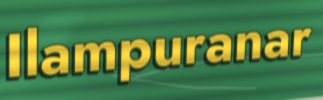
Ilampuranar